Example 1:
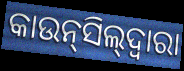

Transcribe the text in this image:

କାଉନ୍‌ସିଲ୍‌ଦ୍ବାରା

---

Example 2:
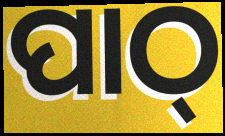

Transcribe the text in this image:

ପାଠ୍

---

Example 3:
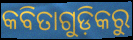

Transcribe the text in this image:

କବିତାଗୁଡ଼ିକରୁ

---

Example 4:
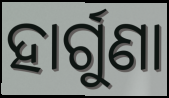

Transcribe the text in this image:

ହାର୍ଗୁଣା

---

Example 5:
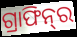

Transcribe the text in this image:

ଗ୍ରାଫିନ୍‌ର